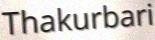
Thakurbari